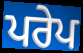
ਪਰੇਪ